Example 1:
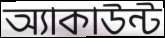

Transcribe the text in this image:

অ্যাকাউন্ট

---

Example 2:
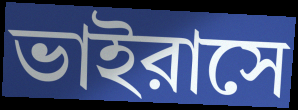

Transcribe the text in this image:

ভাইরাসে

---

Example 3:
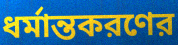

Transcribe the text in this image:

ধর্মান্তকরণের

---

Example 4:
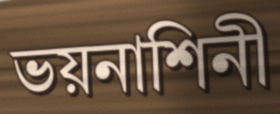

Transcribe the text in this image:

ভয়নাশিনী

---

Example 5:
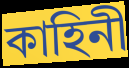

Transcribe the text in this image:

কাহিনী